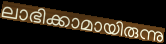
ലാഭിക്കാമായിരുന്നു